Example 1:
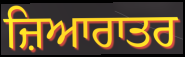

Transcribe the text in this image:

ਜ਼ਿਆਰਾਤਰ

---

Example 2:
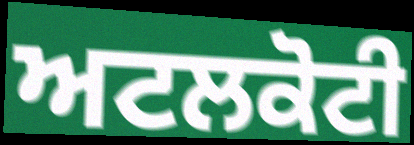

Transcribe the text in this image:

ਅਟਲਕੋਟੀ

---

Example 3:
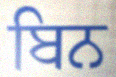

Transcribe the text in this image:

ਬਿਨ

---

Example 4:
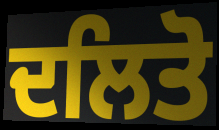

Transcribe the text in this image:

ਦਲਿਤੋ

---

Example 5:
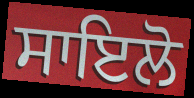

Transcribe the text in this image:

ਸਾਇਲੋ